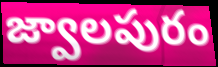
జ్వాలపురం